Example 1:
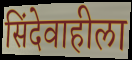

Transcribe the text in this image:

सिंदेवाहीला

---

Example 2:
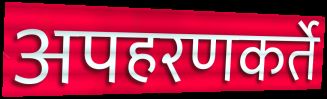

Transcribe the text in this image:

अपहरणकर्ते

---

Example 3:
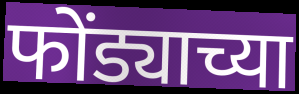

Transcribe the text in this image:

फोंड्याच्या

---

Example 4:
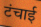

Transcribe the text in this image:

टंचाई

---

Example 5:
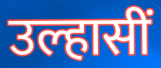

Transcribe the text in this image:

उल्हासीं